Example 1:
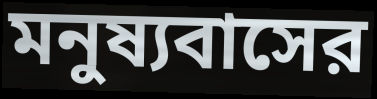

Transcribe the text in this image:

মনুষ্যবাসের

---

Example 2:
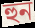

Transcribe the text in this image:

হুন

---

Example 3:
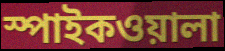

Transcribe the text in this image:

স্পাইকওয়ালা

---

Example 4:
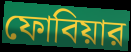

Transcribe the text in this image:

ফোবিয়ার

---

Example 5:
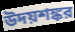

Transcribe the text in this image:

উদয়শঙ্কর